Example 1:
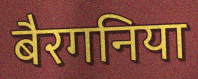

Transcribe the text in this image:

बैरगनिया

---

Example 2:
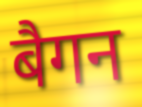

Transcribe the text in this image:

बैगन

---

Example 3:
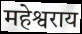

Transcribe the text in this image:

महेश्वराय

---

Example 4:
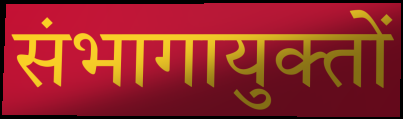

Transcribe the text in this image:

संभागायुक्तों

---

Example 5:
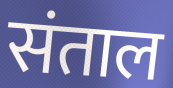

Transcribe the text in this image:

संताल